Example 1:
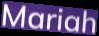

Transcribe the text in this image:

Mariah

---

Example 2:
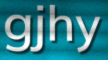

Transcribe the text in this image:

gjhy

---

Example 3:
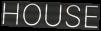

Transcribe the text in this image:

HOUSE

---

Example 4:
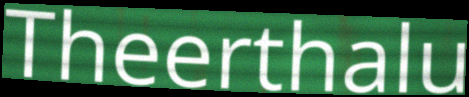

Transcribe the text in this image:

Theerthalu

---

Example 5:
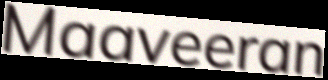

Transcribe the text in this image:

Maaveeran